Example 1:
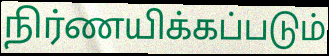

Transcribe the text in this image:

நிர்ணயிக்கப்படும்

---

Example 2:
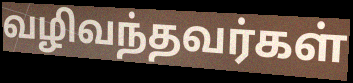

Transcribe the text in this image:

வழிவந்தவர்கள்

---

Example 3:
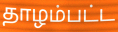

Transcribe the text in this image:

தாழம்பட்ட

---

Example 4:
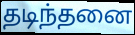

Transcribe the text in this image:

தடிந்தனை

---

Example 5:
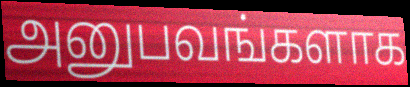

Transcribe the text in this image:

அனுபவங்களாக